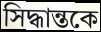
সিদ্ধান্তকে